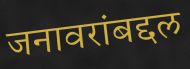
जनावरांबद्दल